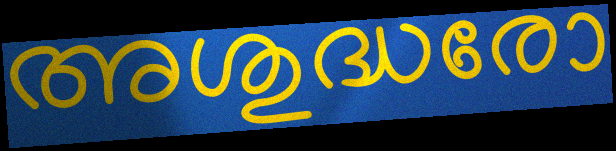
അശുദ്ധരോ